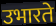
उभारते